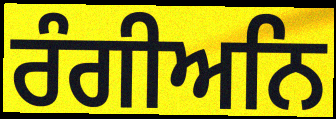
ਰੰਗੀਅਨਿ